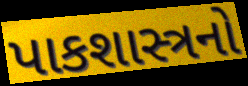
પાકશાસ્ત્રનો